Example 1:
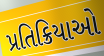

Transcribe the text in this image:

પ્રતિક્રિયાઓ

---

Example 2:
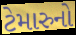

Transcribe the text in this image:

ટેમારુનો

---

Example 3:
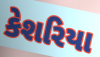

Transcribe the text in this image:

કેશરિયા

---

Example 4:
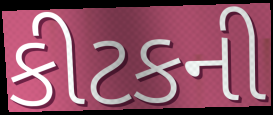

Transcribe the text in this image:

કીટકની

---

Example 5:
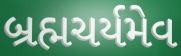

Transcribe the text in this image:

બ્રહ્મચર્યમેવ